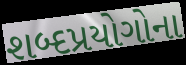
શબ્દપ્રયોગોના